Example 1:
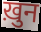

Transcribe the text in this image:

ख़ुन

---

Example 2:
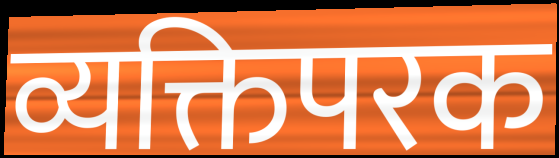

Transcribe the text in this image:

व्यक्तिपरक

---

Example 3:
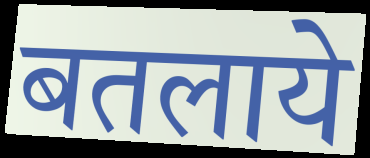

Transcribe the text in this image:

बतलाये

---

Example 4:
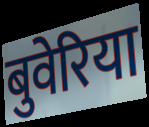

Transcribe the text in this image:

बुवेरिया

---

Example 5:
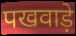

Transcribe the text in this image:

पखवाड़े